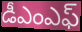
డీఎంఎఫ్